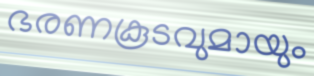
ഭരണകൂടവുമായും